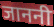
जाननी